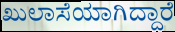
ಖುಲಾಸೆಯಾಗಿದ್ದಾರೆ